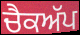
ਚੈਕਅੱਪ